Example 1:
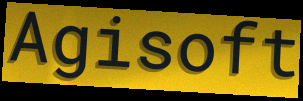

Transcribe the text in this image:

Agisoft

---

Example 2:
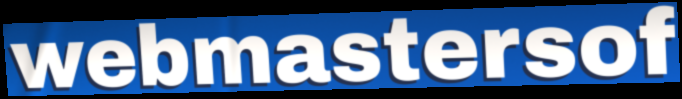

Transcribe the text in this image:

webmastersof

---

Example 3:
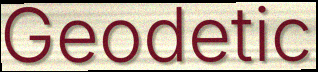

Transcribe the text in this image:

Geodetic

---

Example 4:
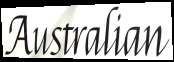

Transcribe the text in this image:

Australian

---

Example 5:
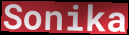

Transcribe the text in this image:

Sonika